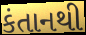
કંતાનથી